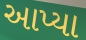
આપ્યા